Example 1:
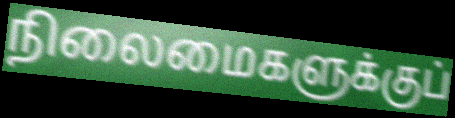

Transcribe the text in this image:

நிலைமைகளுக்குப்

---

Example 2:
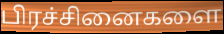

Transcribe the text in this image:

பிரச்சினைகளை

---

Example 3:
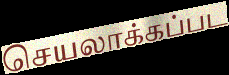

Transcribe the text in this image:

செயலாக்கப்பட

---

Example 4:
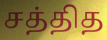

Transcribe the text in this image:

சத்தித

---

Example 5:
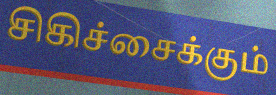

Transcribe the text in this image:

சிகிச்சைக்கும்